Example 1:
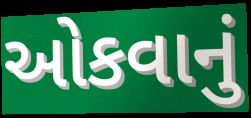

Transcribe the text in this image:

ઓકવાનું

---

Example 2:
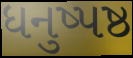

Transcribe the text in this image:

ધનુષ્પષ્ઠ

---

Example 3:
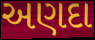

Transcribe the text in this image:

અણદા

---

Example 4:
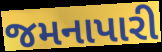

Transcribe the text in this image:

જમનાપારી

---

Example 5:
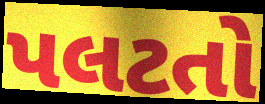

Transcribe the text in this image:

પલટતો